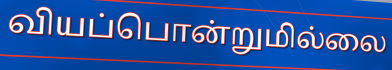
வியப்பொன்றுமில்லை